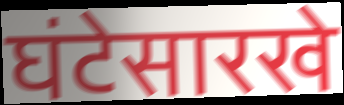
घंटेसारखे